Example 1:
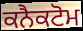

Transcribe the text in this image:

ਕਨੈਕਟੋਮ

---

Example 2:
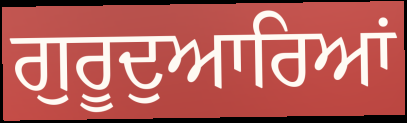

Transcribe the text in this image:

ਗੁਰੂਦੁਆਰਿਆਂ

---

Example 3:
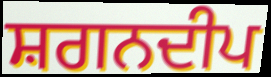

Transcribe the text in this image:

ਸ਼ਗਨਦੀਪ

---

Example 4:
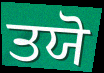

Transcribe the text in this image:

ਤਯੋ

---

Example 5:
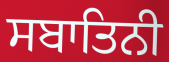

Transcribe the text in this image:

ਸਬਾਤਿਨੀ